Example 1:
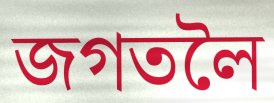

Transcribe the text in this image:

জগতলৈ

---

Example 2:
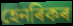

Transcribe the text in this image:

হেনৰিকৰ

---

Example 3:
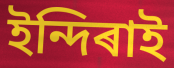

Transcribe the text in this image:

ইন্দিৰাই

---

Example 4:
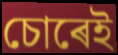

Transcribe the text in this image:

চোৰেই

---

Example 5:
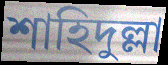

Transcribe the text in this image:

শাহিদুল্লা